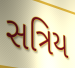
સત્રિય